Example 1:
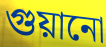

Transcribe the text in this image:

গুয়ানো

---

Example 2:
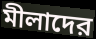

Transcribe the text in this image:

মীলাদের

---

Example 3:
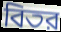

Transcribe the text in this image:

বিতর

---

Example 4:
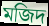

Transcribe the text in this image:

মজিদ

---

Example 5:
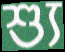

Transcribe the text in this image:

শ্যু